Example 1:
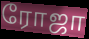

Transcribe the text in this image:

ரோஜா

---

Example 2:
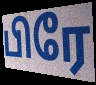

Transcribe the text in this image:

பிரே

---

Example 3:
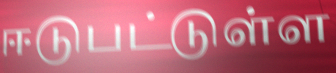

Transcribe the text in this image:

ஈடுபட்டுள்ள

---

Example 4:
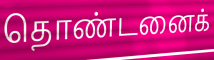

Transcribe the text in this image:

தொண்டனைக்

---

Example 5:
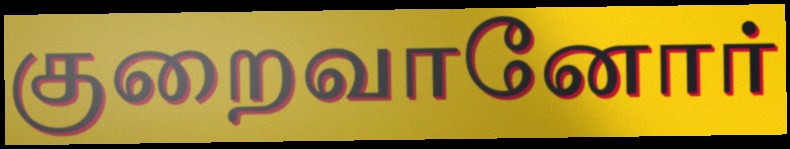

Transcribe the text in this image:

குறைவானோர்